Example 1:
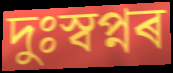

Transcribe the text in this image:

দুঃস্বপ্নৰ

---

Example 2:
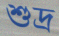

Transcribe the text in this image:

শুদ্ৰ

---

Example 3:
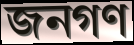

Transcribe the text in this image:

জনগণ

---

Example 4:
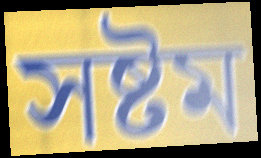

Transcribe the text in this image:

সষ্টম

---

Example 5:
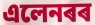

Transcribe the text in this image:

এলেনৰৰ